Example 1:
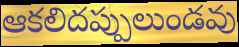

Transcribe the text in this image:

ఆకలిదప్పులుండవు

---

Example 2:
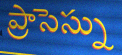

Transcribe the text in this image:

ప్రాసెస్ను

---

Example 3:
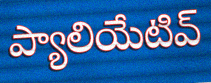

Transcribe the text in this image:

ప్యాలియేటివ్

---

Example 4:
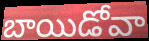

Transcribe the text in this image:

బాయిడోవా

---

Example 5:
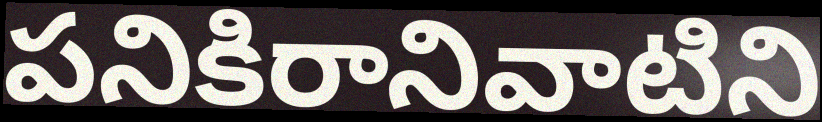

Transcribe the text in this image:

పనికిరానివాటిని